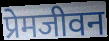
प्रेमजीवन